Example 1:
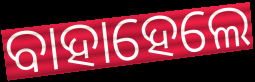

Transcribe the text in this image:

ବାହାହେଲେ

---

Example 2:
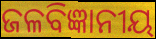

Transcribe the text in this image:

ଜଳବିଜ୍ଞାନୀୟ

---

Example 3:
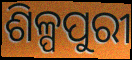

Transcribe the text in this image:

ଶିଳ୍ପପୁରୀ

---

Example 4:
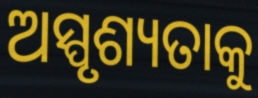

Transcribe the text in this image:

ଅସ୍ପୃଶ୍ୟତାକୁ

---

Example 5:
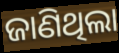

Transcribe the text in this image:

ଜାଣିଥିଲା